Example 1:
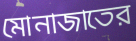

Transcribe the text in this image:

মোনাজাতের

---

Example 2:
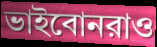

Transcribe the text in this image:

ভাইবোনরাও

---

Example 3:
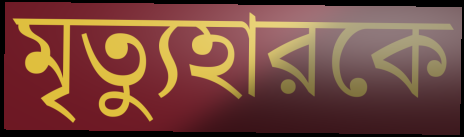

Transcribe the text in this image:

মৃত্যুহারকে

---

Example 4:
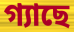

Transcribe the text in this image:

গ্যাছে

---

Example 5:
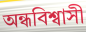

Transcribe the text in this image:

অন্ধবিশ্বাসী